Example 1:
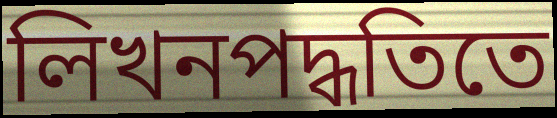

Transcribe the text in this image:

লিখনপদ্ধতিতে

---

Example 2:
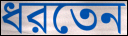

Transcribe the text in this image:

ধরতেন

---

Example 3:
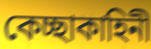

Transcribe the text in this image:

কেচ্ছাকাহিনী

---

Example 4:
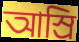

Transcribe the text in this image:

আস্রি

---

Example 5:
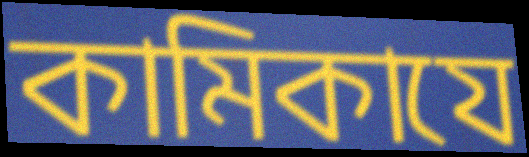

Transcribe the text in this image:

কামিকাযে